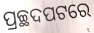
ପ୍ରଚ୍ଛଦପଟରେ